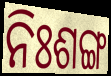
ନିଃଶଙ୍ଗ